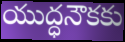
యుద్ధనౌకకు